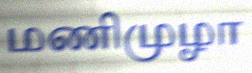
மணிமுழா